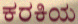
ಕರಕಿಯ